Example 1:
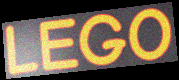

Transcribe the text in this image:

LEGO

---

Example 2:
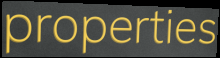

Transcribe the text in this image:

properties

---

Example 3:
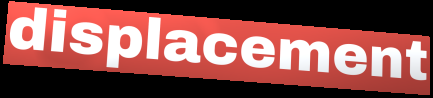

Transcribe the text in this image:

displacement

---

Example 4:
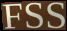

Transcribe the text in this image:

FSS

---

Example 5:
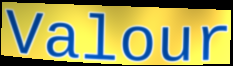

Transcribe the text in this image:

Valour